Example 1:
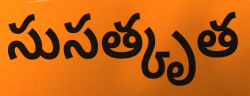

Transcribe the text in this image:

సుసత్కృత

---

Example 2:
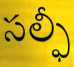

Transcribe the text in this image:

సల్ఫీ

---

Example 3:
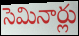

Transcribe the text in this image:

సెమినార్లు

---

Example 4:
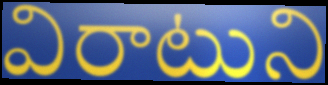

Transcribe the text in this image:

విరాటుని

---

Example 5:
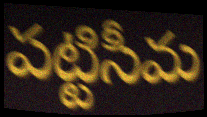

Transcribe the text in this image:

పట్టిసీమ